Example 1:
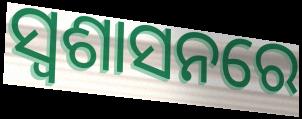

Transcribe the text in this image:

ସ୍ଵଶାସନରେ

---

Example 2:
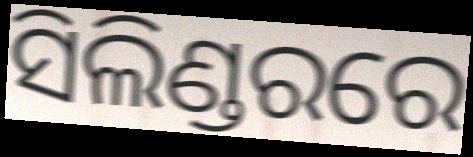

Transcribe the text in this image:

ସିଲିଣ୍ଡରରେ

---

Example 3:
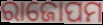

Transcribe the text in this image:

ରାଜୋପମ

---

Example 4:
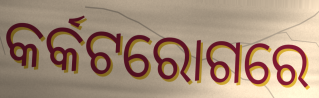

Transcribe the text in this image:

କର୍କଟରୋଗରେ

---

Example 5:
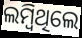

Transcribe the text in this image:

ଲମ୍ବିଥିଲେ